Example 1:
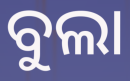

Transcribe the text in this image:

ବୁଲା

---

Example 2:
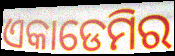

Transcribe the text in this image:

ଏକାଡେମିର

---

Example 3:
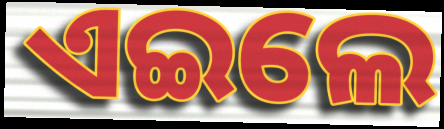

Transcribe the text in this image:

ଏଇଲେ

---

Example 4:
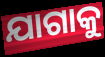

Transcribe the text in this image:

ଯାଗାକୁ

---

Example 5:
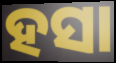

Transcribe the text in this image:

ହସା